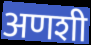
अणशी